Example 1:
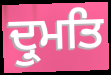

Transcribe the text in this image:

ਦ੍ਰੁਮਤਿ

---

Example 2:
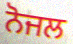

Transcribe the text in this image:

ਨੋਜਲ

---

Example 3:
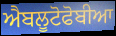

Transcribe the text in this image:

ਐਬਲੂਟੋਫੋਬੀਆ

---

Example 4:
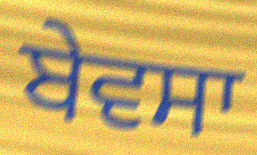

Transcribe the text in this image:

ਬੇਵਸਾ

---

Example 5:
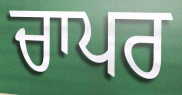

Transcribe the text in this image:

ਚਾਪਰ